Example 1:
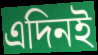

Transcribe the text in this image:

এদিনই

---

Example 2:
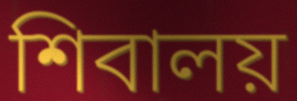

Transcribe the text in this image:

শিবালয়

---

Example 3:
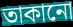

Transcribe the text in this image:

তাকানো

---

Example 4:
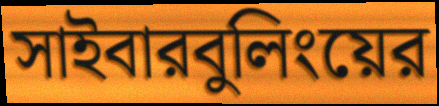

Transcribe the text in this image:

সাইবারবুলিংয়ের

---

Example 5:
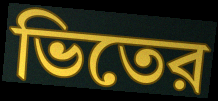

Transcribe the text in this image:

ভিতের